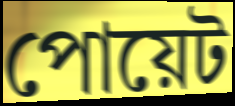
পোয়েট